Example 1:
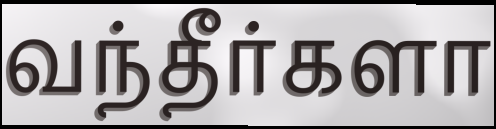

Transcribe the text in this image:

வந்தீர்களா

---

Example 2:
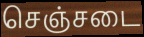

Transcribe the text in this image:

செஞ்சடை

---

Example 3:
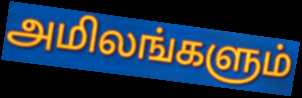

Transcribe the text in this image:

அமிலங்களும்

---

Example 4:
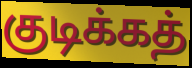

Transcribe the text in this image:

குடிக்கத்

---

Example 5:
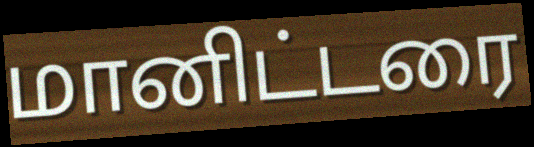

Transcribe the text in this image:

மானிட்டரை